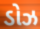
ડોઝ